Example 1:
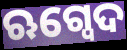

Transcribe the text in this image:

ଋଗ୍ବେଦ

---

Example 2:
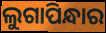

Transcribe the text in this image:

ଲୁଗାପିନ୍ଧାର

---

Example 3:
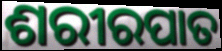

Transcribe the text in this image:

ଶରୀରପାତ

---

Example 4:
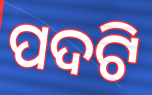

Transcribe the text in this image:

ପଦଟି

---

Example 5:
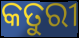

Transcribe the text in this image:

କତୁରୀ